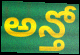
అన్తో